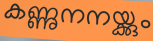
കണ്ണുനനയ്ക്കും